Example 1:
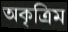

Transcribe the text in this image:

অকৃত্ৰিম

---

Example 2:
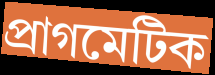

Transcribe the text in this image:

প্ৰাগমেটিক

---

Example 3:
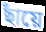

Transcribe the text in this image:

ছাঁয়ে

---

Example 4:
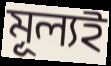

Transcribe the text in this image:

মূল্যই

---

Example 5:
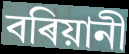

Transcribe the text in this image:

বৰিয়ানী